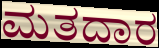
ಮತದಾರ